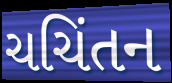
ચચિંતન